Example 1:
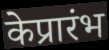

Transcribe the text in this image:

केप्रारंभ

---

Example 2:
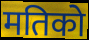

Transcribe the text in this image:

मतिको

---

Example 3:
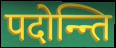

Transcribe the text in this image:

पदोन्न्ति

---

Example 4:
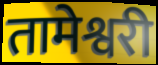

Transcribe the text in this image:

तामेश्वरी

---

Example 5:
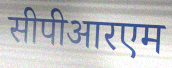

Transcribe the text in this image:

सीपीआरएम